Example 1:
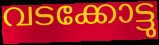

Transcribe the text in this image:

വടക്കോട്ടു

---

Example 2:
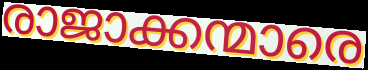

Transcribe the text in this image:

രാജാക്കന്മാരെ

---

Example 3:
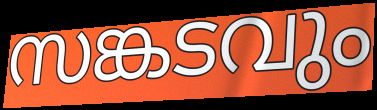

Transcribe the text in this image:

സങ്കടവും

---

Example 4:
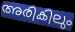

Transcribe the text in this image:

അരികിലും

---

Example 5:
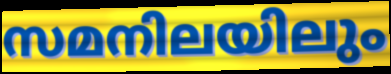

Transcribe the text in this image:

സമനിലയിലും